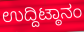
ಉದ್ದಿಟ್ಠಾನಂ